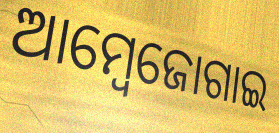
ଆମ୍ବେଜୋଗାଇ